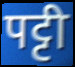
पट्टी